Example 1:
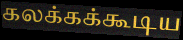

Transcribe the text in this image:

கலக்கக்கூடிய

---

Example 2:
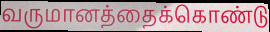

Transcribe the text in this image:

வருமானத்தைக்கொண்டு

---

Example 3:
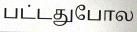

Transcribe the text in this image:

பட்டதுபோல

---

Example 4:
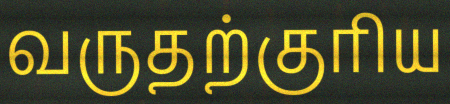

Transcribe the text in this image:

வருதற்குரிய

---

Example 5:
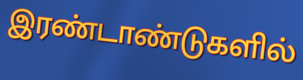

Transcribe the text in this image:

இரண்டாண்டுகளில்